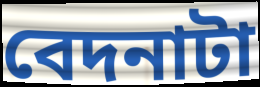
বেদনাটা